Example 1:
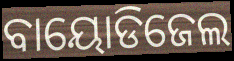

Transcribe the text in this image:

ବାୟୋଡିଜେଲ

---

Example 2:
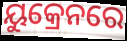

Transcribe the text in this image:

ୟୁକ୍ରେନରେ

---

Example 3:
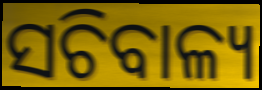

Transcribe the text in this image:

ସଚିବାଳ୍ୟ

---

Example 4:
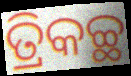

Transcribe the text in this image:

ତ୍ରିକଚ୍ଛ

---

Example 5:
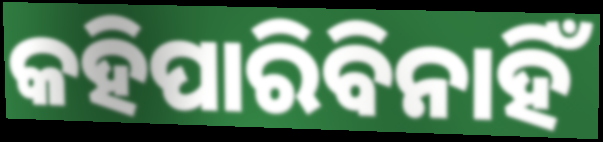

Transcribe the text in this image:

କହିପାରିବିନାହିଁ